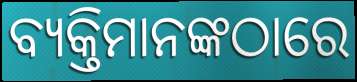
ବ୍ୟକ୍ତିମାନଙ୍କଠାରେ